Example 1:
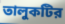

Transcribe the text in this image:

তালুকটির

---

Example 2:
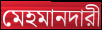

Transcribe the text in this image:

মেহমানদারী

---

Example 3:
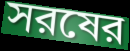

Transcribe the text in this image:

সরষের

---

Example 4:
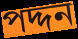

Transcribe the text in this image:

পদ্দন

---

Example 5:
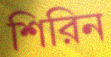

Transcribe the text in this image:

শিরিন